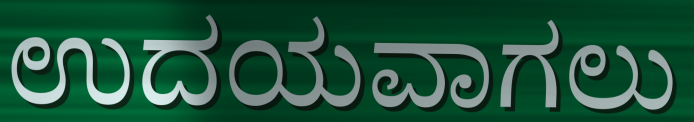
ಉದಯವಾಗಲು